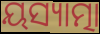
ୟସ୍ୟାତ୍ମା